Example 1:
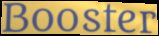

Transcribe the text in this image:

Booster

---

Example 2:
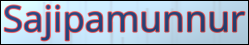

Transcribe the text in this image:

Sajipamunnur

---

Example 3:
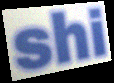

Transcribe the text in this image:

shi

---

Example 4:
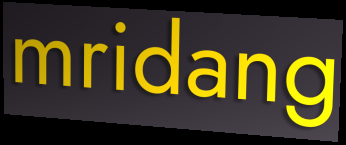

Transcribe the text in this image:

mridang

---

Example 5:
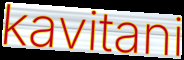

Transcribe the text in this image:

kavitani